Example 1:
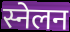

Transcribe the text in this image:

स्नेलन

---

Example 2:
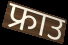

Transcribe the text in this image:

फ्राउ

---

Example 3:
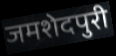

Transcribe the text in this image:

जमशेदपुरी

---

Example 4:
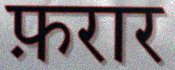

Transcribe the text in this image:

फ़रार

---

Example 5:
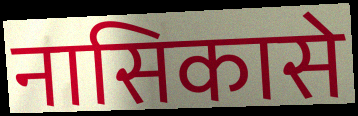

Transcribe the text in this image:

नासिकासे